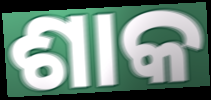
ଶାକ